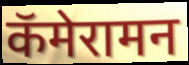
कॅमेरामन